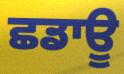
ਛਡਾਊ